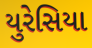
યુરેસિયા